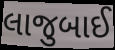
લાજુબાઈ